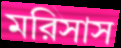
মরিসাস